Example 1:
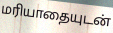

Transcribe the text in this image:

மரியாதையுடன்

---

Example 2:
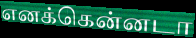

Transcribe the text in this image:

எனக்கென்னடா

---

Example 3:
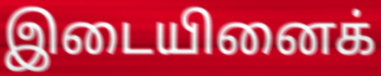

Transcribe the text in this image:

இடையினைக்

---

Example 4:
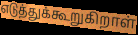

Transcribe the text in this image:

எடுத்துக்கூறுகிறாள்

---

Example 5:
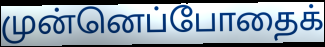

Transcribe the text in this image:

முன்னெப்போதைக்